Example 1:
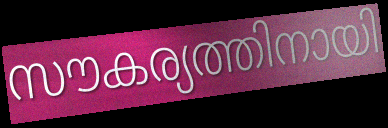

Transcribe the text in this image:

സൗകര്യത്തിനായി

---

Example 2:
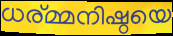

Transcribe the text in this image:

ധര്മ്മനിഷ്ഠയെ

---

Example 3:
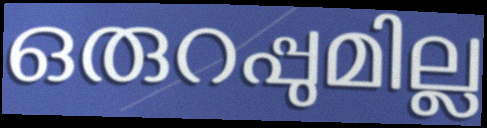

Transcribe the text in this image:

ഒരുറപ്പുമില്ല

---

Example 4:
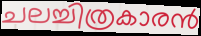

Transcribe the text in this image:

ചലച്ചിത്രകാരൻ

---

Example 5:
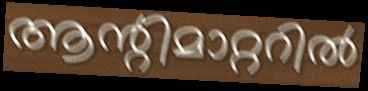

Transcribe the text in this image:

ആന്റിമാറ്ററിൽ